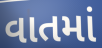
વાતમાં